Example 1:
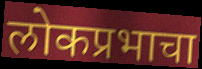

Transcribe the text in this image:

लोकप्रभाचा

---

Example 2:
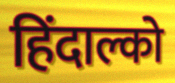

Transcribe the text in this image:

हिंदाल्को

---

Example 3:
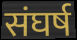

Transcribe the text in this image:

संघर्ष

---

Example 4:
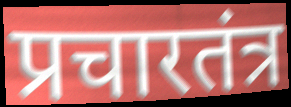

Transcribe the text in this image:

प्रचारतंत्र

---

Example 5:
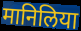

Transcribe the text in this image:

मानिलिया